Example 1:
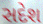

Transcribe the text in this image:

સદેશ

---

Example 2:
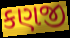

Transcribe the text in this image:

કણજી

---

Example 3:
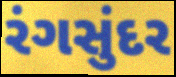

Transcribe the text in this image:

રંગસુંદર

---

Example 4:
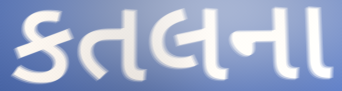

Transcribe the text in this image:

કતલના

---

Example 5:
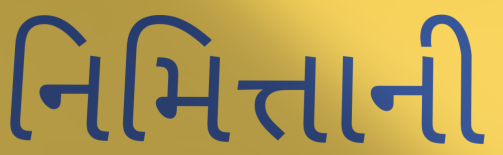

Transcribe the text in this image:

નિમિત્તાની